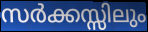
സർക്കസ്സിലും